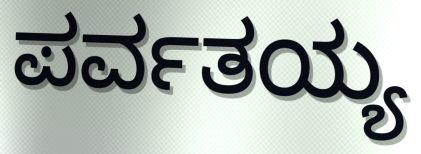
ಪರ್ವತಯ್ಯ